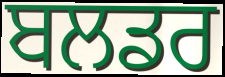
ਬਲਡਰ